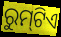
ରୁମ୍‌ଟିଏ